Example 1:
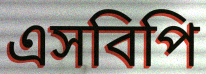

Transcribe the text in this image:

এসবিপি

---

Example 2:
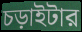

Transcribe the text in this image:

চড়াইটার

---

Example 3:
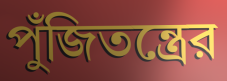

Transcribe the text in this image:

পুঁজিতন্ত্রের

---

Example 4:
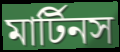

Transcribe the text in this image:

মার্টিনস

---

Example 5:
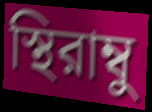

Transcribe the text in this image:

স্থিরাম্বু